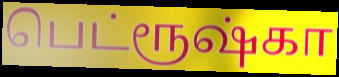
பெட்ரூஷ்கா